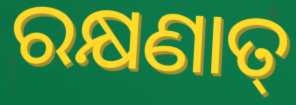
ରକ୍ଷଣାତ୍